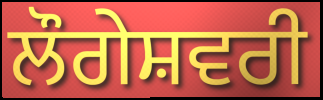
ਲੌਗੇਸ਼ਵਰੀ